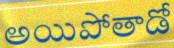
అయిపోతాడో